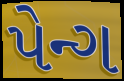
પેન્ગ